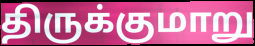
திருக்குமாறு